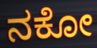
ನಕೋ